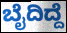
ಬೈದಿದ್ದೆ